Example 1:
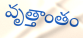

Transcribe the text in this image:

వృత్తాంతం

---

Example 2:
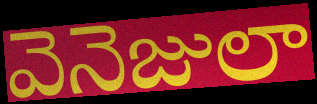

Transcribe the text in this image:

వెనెజులా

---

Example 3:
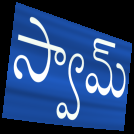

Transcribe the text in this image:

స్వామ్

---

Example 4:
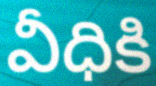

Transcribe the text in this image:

వీధికి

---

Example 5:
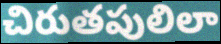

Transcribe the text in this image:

చిరుతపులిలా